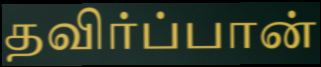
தவிர்ப்பான்